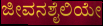
ಜೀವನಶೈಲಿಯೇ